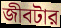
জীবটার